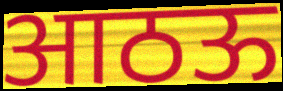
आठऊ